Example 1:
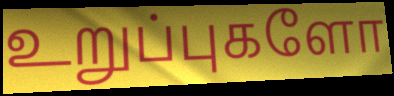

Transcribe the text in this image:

உறுப்புகளோ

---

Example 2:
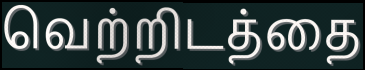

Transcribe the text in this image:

வெற்றிடத்தை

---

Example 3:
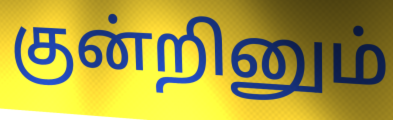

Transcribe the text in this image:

குன்றினும்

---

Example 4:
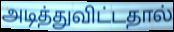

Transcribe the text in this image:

அடித்துவிட்டதால்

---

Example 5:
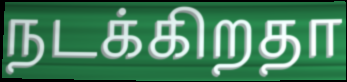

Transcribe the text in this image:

நடக்கிறதா